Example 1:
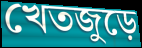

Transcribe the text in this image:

খেতজুড়ে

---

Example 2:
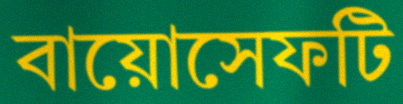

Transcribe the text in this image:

বায়োসেফটি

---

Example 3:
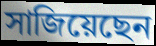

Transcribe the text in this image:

সাজিয়েছেন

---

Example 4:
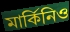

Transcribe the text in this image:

মার্কিনিও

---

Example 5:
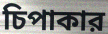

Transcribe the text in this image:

চিপাকার